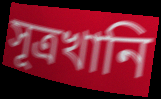
সূত্রখানি